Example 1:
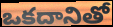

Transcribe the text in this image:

ఒకదానితో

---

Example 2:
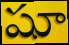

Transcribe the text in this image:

షూ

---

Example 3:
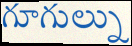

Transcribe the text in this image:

గూగుల్ను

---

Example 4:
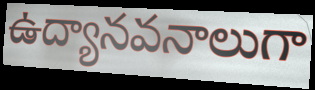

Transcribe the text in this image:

ఉద్యానవనాలుగా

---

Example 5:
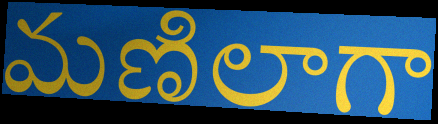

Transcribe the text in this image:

మణిలాగా